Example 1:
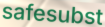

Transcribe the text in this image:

safesubst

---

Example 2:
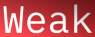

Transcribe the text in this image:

Weak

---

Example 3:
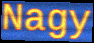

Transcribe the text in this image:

Nagy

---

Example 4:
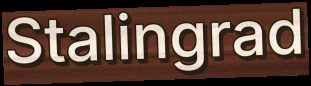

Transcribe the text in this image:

Stalingrad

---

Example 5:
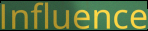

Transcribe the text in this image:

Influence